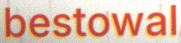
bestowal